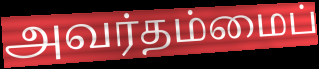
அவர்தம்மைப்